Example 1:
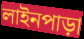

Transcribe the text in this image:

লাইনপাড়া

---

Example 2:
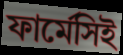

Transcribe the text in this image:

ফার্মেসিই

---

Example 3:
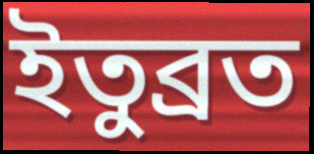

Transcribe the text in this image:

ইতুব্রত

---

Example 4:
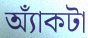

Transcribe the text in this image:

অ্যাঁকটা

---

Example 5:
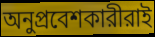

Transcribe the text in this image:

অনুপ্রবেশকারীরাই